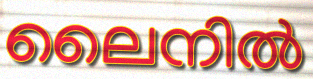
ലൈനിൽ